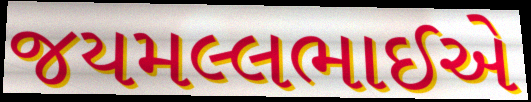
જયમલ્લભાઈએ